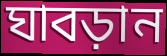
ঘাবড়ান